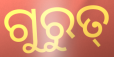
ଗୁରୁତ୍